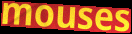
mouses